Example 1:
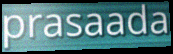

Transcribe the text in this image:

prasaada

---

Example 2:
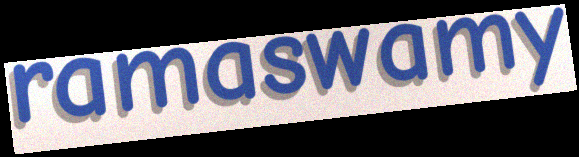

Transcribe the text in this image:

ramaswamy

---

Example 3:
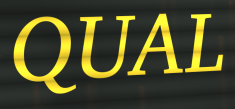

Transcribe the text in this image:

QUAL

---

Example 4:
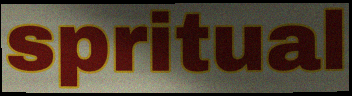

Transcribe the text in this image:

spritual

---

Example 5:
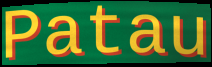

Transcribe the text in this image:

Patau